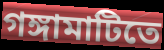
গঙ্গামাটিতে